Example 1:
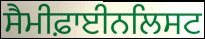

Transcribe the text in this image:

ਸੈਮੀਫ਼ਾਈਨਲਿਸਟ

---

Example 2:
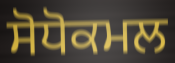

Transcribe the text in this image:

ਸੋਧੋਕਮਲ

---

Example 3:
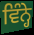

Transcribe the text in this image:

ਵਿੰਨ੍ਹੇ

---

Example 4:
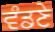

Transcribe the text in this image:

ਵੰਡਣੇ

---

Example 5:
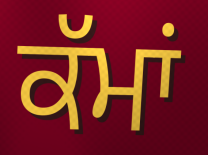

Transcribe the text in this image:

ਕੱਮਾਂ